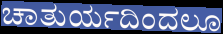
ಚಾತುರ್ಯದಿಂದಲೂ